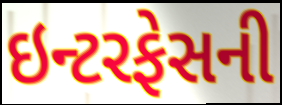
ઇન્ટરફેસની